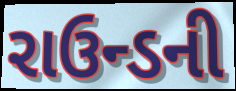
રાઉન્ડની